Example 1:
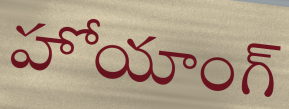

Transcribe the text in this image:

హోయాంగ్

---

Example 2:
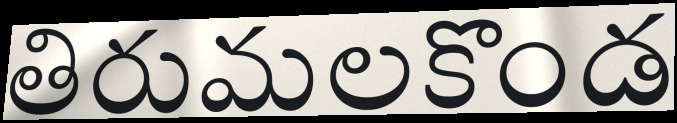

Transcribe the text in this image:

తిరుమలకొండ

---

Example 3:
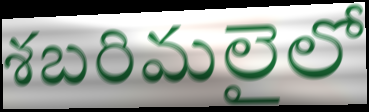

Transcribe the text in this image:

శబరిమలైలో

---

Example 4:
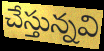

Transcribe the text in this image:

చేస్తున్నవి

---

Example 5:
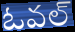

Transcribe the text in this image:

ఓవల్